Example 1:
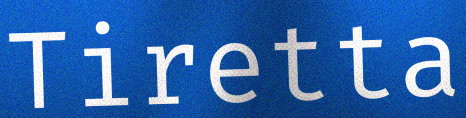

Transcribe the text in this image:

Tiretta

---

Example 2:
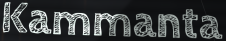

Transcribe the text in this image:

Kammanta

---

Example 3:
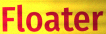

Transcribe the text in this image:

Floater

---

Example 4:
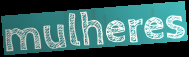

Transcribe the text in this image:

mulheres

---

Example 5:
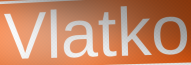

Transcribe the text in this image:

Vlatko